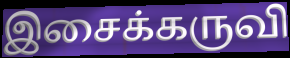
இசைக்கருவி